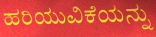
ಹರಿಯುವಿಕೆಯನ್ನು